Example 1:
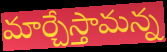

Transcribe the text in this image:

మార్చేస్తామన్న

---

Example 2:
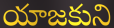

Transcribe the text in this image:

యాజకుని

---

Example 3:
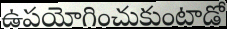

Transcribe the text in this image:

ఉపయోగించుకుంటాడో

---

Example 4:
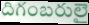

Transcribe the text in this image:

దిగంబరులై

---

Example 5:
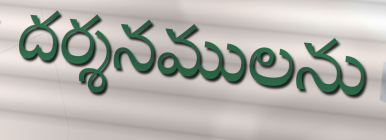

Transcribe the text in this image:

దర్శనములను